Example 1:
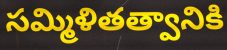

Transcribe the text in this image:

సమ్మిళితత్వానికి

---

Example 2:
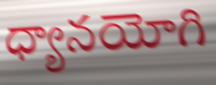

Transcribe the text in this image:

ధ్యానయోగి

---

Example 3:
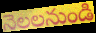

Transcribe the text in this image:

నెలలనుండి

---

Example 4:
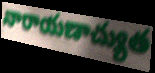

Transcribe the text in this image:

నారాయణాచ్యుత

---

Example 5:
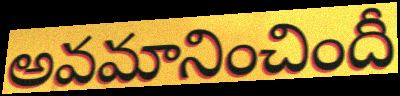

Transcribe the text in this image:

అవమానించిందీ